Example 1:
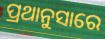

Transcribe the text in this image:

ପ୍ରଥାନୁସାରେ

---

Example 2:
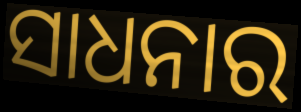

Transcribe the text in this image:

ସାଧନାର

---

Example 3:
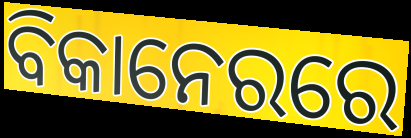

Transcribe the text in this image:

ବିକାନେରରେ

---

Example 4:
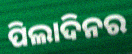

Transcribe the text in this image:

ପିଲାଦିନର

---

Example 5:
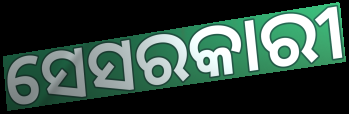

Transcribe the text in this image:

ସେସରକାରୀ